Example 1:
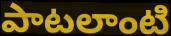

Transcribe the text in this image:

పాటలాంటి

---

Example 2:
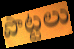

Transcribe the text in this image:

పొట్టలు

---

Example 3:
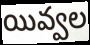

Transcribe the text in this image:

యివ్వల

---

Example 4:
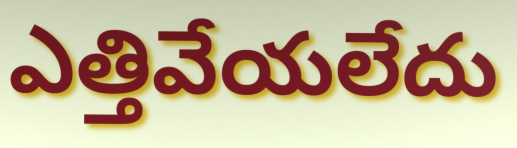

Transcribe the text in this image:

ఎత్తివేయలేదు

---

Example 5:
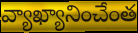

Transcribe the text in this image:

వ్యాఖ్యానించేంత